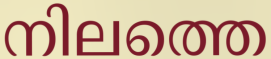
നിലത്തെ